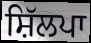
ਸ਼ਿੱਲਪਾ